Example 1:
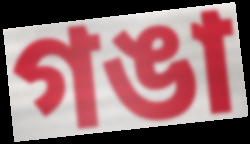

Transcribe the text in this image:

গঙা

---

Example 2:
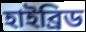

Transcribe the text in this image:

হাইব্ৰিড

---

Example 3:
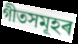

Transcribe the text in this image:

গীতসমূহৰ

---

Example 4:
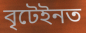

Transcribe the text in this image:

বৃটেইনত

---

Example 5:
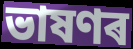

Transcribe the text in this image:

ভাষণৰ